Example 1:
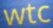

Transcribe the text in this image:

wtc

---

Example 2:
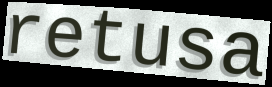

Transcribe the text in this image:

retusa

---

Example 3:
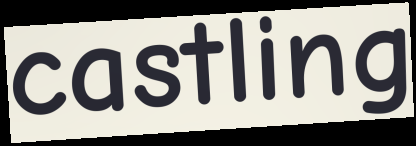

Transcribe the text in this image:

castling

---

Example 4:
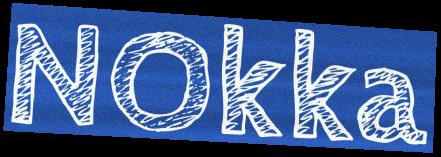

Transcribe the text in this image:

NOkka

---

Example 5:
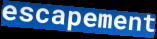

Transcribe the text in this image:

escapement